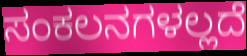
ಸಂಕಲನಗಳಲ್ಲದೆ